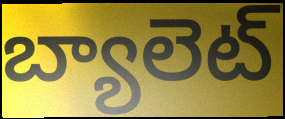
బ్యాలెట్